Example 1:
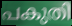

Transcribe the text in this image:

പകുതി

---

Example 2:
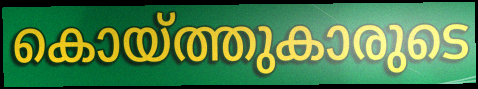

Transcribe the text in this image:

കൊയ്ത്തുകാരുടെ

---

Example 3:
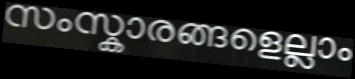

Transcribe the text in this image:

സംസ്കാരങ്ങളെല്ലാം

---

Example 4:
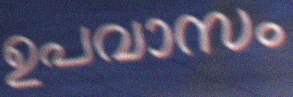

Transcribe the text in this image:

ഉപവാസം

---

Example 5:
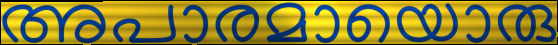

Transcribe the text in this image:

അപാരമായൊരു